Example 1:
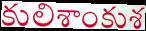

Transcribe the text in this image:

కులిశాంకుశ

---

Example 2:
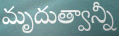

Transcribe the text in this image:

మృదుత్వాన్నీ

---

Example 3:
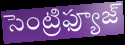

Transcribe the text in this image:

సెంట్రిఫ్యూజ్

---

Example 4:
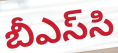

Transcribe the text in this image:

బీఎస్‌సి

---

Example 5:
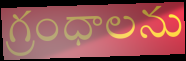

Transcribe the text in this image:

గ్రంధాలను